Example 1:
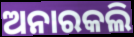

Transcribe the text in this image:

ଅନାରକଲି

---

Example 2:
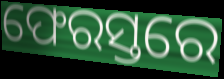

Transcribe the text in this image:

ଫେରସ୍ତରେ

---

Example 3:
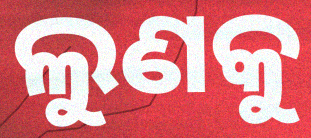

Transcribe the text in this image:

ଲୁଣକୁ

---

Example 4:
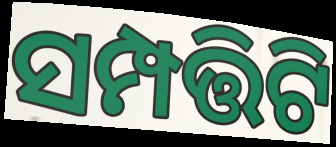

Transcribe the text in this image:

ସମ୍ପତ୍ତିଟି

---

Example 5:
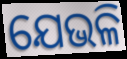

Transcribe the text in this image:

ଯେଭଳି